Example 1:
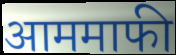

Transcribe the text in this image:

आममाफी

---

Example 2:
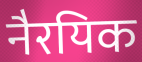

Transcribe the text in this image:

नैरयिक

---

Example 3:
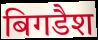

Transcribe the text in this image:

बिगडैश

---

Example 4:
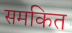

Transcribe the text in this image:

समकित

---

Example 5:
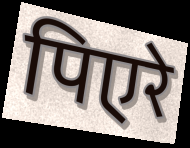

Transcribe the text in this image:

पिएरे